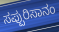
ಸಪ್ಪುರಿಸಾನಂ